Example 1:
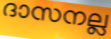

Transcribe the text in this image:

ദാസനല്ല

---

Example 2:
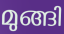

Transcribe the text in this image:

മുങ്ങി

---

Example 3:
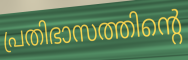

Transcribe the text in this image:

പ്രതിഭാസത്തിന്റെ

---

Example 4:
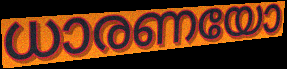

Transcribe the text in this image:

ധാരണയോ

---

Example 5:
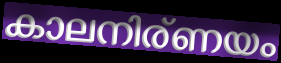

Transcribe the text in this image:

കാലനിര്ണയം